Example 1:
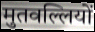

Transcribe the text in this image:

मुतवल्लियों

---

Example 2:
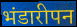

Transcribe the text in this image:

भंडारीपन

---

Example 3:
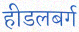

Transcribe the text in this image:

हीडलबर्ग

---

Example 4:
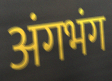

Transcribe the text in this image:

अंगभंग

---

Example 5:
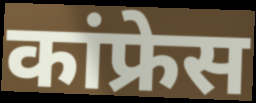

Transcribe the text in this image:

कांफ्रेस